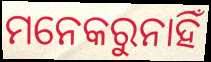
ମନେକରୁନାହିଁ